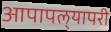
आपापल्यापरी